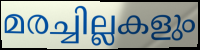
മരച്ചില്ലകളും